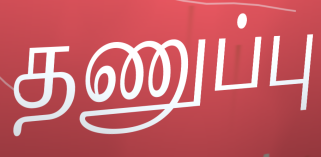
தணுப்பு